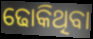
ଢୋକିଥିବା